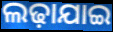
ଲଢ଼ାଯାଇ